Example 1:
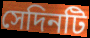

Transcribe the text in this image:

সেদিনটি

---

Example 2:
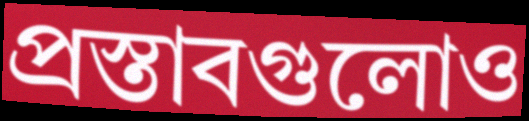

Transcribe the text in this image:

প্রস্তাবগুলোও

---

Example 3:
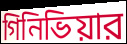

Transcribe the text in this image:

গিনিভিয়ার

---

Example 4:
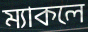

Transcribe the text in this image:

ম্যাকলে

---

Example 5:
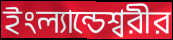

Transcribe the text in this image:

ইংল্যান্ডেশ্বরীর